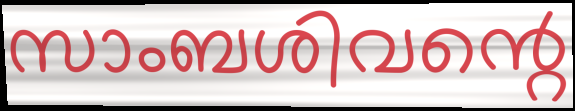
സാംബശിവന്റെ